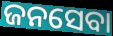
ଜନସେବା